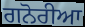
ਗਨੋਰੀਆ